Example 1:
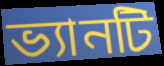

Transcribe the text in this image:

ভ্যানটি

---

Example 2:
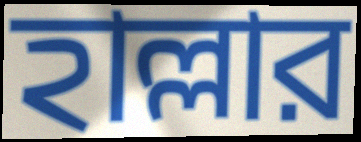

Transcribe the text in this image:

হাল্লার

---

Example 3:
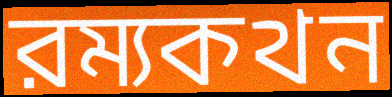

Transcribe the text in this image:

রম্যকথন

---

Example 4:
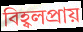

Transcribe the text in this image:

বিহ্বলপ্রায়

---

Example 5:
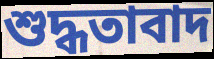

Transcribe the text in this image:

শুদ্ধতাবাদ